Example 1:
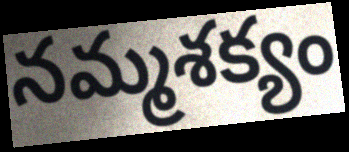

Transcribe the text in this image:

నమ్మశక్యం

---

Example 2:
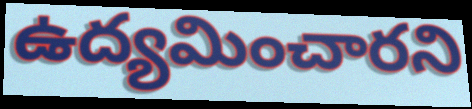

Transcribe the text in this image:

ఉద్యమించారని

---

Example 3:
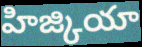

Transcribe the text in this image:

హిజ్కియా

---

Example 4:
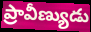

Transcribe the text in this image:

ప్రావీణ్యుడు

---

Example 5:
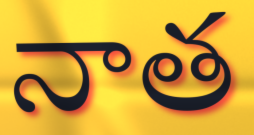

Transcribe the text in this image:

నాత